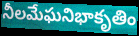
నీలమేఘనిభాకృతిం